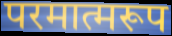
परमात्मरूप